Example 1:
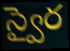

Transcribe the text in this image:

స్వైర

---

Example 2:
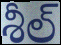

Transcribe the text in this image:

శీల్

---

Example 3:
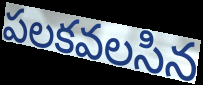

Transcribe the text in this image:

పలకవలసిన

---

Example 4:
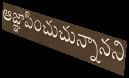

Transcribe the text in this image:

ఆజ్ఞాపించుచున్నానని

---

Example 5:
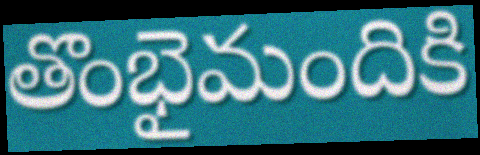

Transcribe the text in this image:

తొంభైమందికి